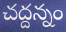
చద్దన్నం